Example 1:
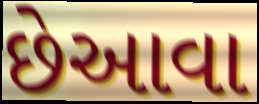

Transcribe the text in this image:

છેઆવા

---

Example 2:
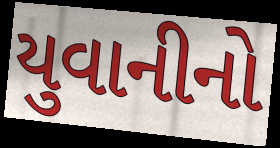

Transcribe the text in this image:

યુવાનીનો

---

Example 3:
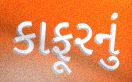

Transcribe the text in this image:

કાફૂરનું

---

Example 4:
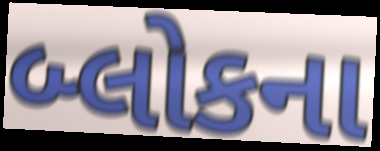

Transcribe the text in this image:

બ્લોકના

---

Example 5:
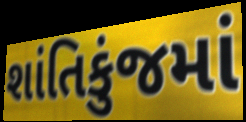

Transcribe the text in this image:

શાંતિકુંજમાં